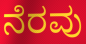
ನೆರವು